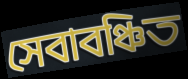
সেবাবঞ্চিত